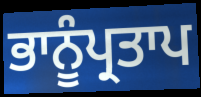
ਭਾਨੂੰਪ੍ਰਤਾਪ